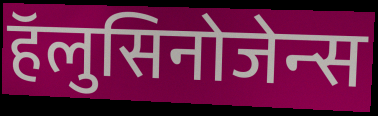
हॅलुसिनोजेन्स